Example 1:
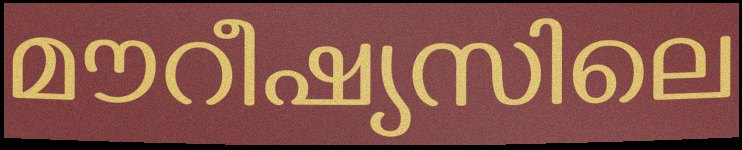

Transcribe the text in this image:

മൗറീഷ്യസിലെ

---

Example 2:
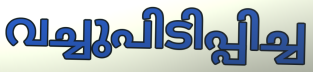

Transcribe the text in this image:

വച്ചുപിടിപ്പിച്ച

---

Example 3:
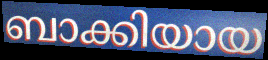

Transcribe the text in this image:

ബാക്കിയായ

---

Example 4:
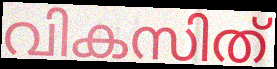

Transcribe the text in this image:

വികസിത്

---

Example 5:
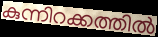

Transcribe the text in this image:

കുന്നിറക്കത്തിൽ